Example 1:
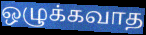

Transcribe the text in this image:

ஒழுக்கவாத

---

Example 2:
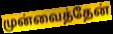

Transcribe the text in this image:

முன்வைத்தேன்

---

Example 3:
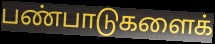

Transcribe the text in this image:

பண்பாடுகளைக்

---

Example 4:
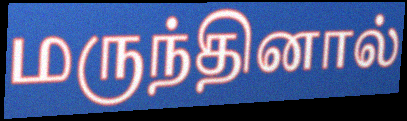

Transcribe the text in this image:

மருந்தினால்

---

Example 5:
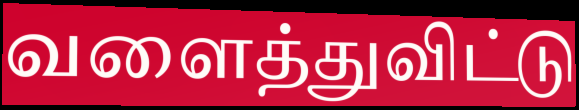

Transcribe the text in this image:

வளைத்துவிட்டு